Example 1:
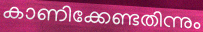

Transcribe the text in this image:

കാണിക്കേണ്ടതിന്നും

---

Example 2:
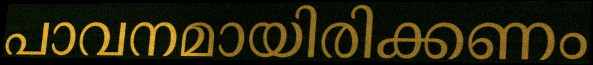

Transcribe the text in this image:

പാവനമായിരിക്കണം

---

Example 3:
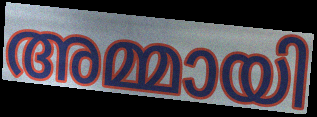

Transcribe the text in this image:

അമ്മായി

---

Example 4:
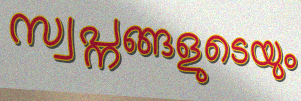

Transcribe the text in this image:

സ്വപ്നങ്ങളുടെയും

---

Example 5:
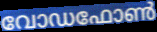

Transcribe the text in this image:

വോഡഫോൺ